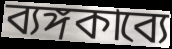
ব্যঙ্গকাব্যে